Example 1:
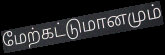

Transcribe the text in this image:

மேற்கட்டுமானமும்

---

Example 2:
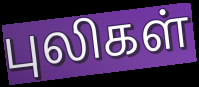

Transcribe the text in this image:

புலிகள்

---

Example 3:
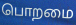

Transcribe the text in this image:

பொறமை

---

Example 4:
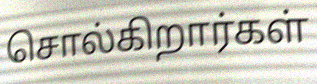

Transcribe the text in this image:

சொல்கிறார்கள்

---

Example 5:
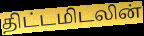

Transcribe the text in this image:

திட்டமிடலின்